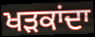
ਖੜਕਾਂਦਾ